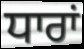
ਧਾਰਾਂ